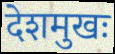
देशमुखः